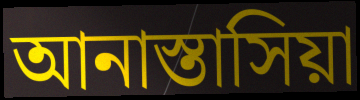
আনাস্তাসিয়া